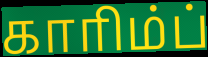
காரிம்ப்